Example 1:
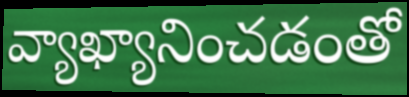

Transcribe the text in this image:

వ్యాఖ్యానించడంతో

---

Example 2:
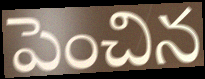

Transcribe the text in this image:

పెంచిన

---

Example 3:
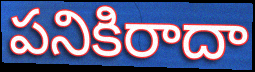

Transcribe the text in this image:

పనికిరాదా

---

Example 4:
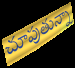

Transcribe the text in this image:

చూపుతున్నా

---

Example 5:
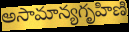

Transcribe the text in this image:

అసామాన్యగృహిణి